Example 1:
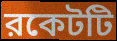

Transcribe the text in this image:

রকেটটি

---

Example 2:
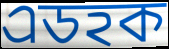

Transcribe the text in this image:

এডহক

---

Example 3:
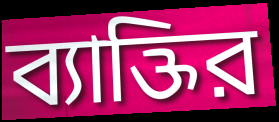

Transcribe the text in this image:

ব্যাক্তির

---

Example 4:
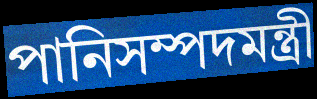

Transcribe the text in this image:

পানিসম্পদমন্ত্রী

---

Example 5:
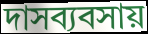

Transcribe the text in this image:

দাসব্যবসায়